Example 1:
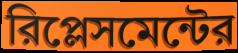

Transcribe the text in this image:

রিপ্লেসমেন্টের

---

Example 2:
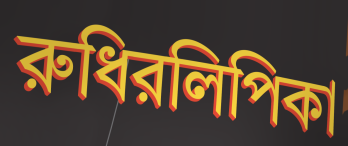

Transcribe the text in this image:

রুধিরলিপিকা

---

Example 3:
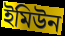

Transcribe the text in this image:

ইমিউন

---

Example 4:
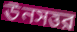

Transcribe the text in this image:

ঊনসত্তর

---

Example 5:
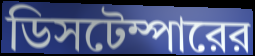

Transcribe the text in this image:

ডিসটেম্পারের